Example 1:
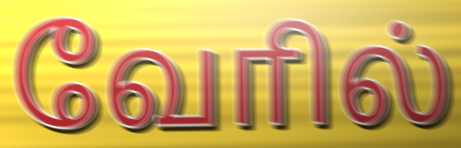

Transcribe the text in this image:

வேரில்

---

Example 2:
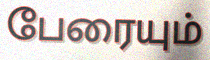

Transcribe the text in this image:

பேரையும்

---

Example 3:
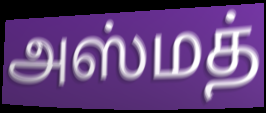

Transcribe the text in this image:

அஸ்மத்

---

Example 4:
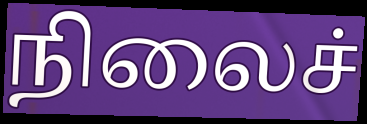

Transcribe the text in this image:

நிலைச்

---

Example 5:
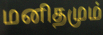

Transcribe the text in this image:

மனிதமும்